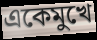
একেমুখে